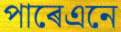
পাৰেএনে